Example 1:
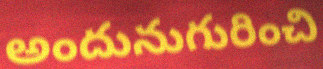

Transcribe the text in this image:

అందునుగురించి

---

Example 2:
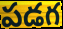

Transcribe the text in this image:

పడగ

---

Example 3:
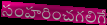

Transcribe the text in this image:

సంహరించగలిగే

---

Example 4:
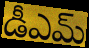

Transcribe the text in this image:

డీఎమ్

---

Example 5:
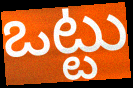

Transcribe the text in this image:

ఒట్టు